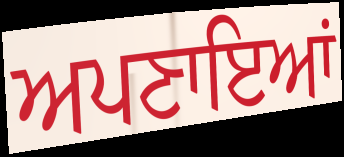
ਅਪਣਾਇਆਂ